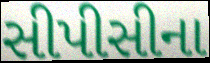
સીપીસીના